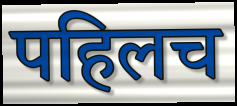
पहिलच